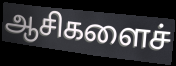
ஆசிகளைச்